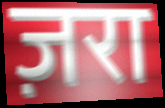
ज़रा